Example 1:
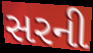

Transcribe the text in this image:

સરની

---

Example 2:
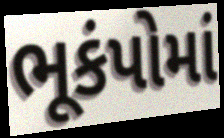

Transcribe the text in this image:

ભૂકંપોમાં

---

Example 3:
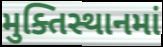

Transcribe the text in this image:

મુક્તિસ્થાનમાં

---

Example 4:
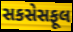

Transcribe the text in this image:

સકસેસફૂલ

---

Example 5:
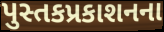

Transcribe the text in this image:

પુસ્તકપ્રકાશનના